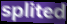
splited